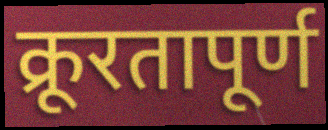
क्रूरतापूर्ण